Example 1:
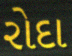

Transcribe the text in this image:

રોદા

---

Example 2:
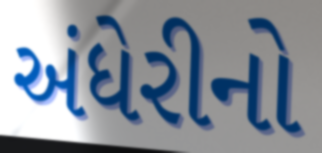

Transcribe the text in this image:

અંધેરીનો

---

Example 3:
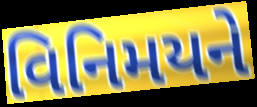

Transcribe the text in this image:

વિનિમયને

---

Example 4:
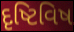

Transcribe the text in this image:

દૃષ્ટિવિષ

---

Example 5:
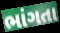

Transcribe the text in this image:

ભાંગતા